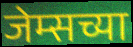
जेम्सच्या